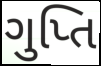
ગુપ્તિ